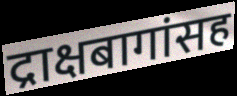
द्राक्षबागांसह